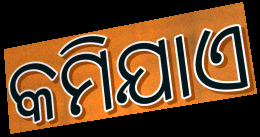
କମିଯାଏ